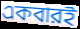
একবারই